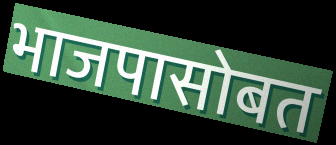
भाजपासोबत